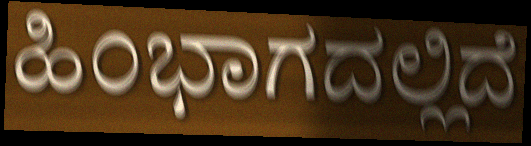
ಹಿಂಭಾಗದಲ್ಲಿದೆ